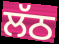
ਲੱਠ